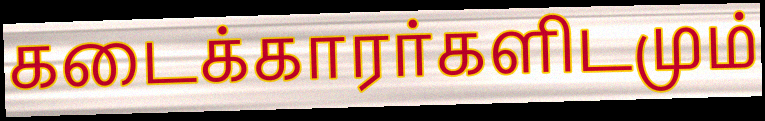
கடைக்காரர்களிடமும்